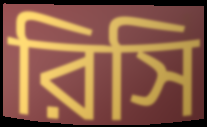
রিসি